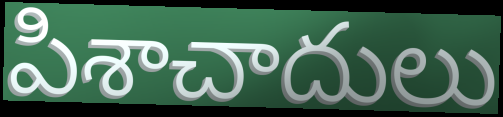
పిశాచాదులు